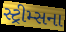
સ્ટ્રીમ્સના